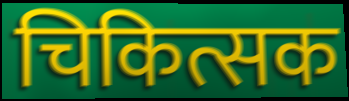
चिकित्सक